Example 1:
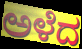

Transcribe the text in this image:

ಅಳೆದ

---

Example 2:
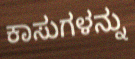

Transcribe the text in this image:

ಕಾಸುಗಳನ್ನು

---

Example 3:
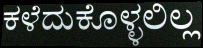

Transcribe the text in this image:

ಕಳೆದುಕೊಳ್ಳಲಿಲ್ಲ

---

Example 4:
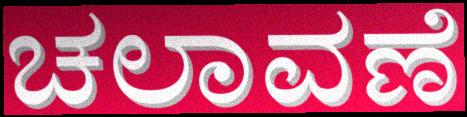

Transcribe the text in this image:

ಚಲಾವಣೆ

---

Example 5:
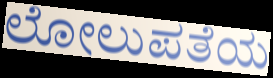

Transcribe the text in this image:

ಲೋಲುಪತೆಯ